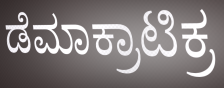
ಡೆಮಾಕ್ರಾಟಿಕ್ರ